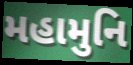
મહામુનિ